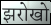
झरोखो